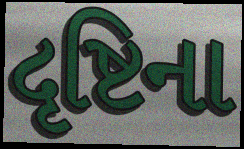
દૃષ્ટિના